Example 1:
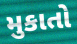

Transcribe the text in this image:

મુકાતો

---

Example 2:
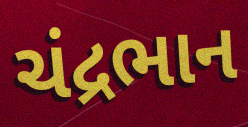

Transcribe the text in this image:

ચંદ્રભાન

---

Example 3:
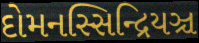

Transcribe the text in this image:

દોમનસ્સિન્દ્રિયઞ્ચ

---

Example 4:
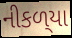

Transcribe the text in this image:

નીકળ્‌યા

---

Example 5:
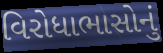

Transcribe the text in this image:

વિરોધાભાસોનું